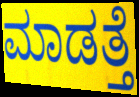
ಮಾಡತ್ತೆ